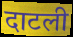
दाटली